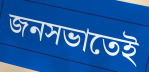
জনসভাতেই